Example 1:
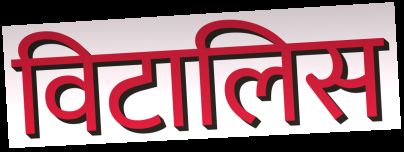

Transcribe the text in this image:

विटालिस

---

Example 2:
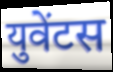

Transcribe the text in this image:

युवेंटस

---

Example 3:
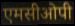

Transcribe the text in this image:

एमसीओपी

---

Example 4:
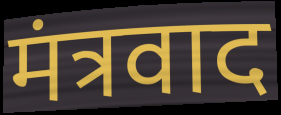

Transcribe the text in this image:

मंत्रवाद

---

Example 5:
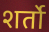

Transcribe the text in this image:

शर्तो